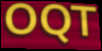
OQT